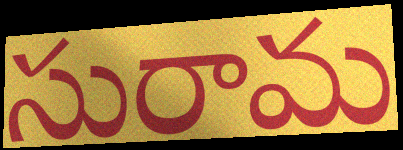
సురామ